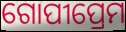
ଗୋପୀପ୍ରେମ